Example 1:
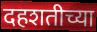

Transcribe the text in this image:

दहशतीच्या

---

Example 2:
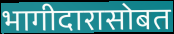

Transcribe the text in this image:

भागीदारासोबत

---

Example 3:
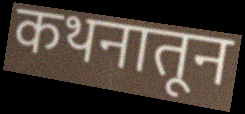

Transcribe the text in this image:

कथनातून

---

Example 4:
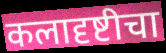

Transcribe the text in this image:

कलादृष्टीचा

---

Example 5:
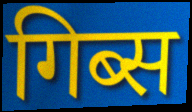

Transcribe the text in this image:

गिब्स